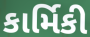
કાર્મિકી